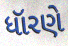
ધૉરણે